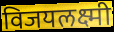
विजयलक्ष्मी